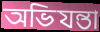
অভিযন্তা